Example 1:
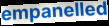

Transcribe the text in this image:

empanelled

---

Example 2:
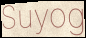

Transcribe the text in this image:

Suyog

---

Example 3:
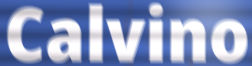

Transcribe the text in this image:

Calvino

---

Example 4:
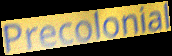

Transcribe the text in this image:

Precolonial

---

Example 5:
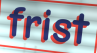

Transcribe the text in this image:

frist